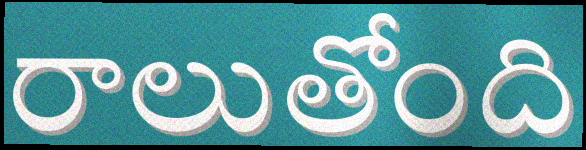
రాలుతోంది